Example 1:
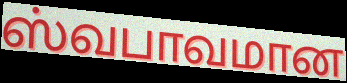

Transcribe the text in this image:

ஸ்வபாவமான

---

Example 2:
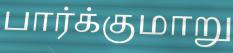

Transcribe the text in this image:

பார்க்குமாறு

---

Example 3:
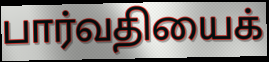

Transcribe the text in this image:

பார்வதியைக்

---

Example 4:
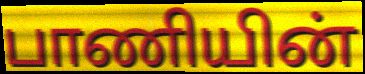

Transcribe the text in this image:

பாணியின்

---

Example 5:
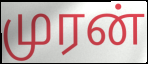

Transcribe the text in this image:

முரன்